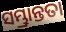
ସମ୍ଭ୍ରାନ୍ତତା